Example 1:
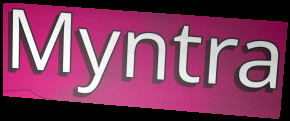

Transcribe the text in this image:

Myntra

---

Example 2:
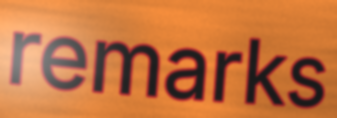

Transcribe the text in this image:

remarks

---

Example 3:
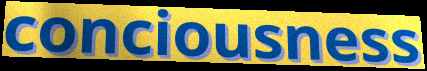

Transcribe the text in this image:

conciousness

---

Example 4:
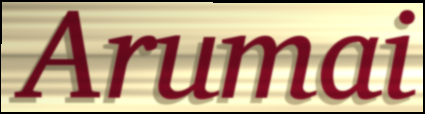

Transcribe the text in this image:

Arumai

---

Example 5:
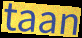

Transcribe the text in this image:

taan